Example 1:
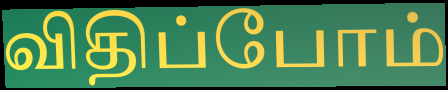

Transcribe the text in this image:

விதிப்போம்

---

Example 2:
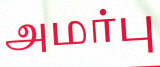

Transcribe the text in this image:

அமர்பு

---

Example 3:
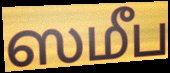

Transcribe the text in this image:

ஸமீப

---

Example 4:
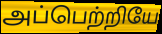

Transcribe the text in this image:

அப்பெற்றியே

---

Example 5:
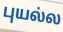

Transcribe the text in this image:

புயல்ல